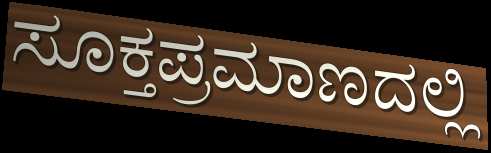
ಸೂಕ್ತಪ್ರಮಾಣದಲ್ಲಿ